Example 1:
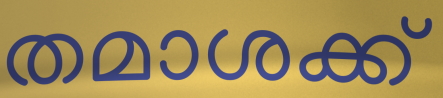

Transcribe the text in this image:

തമാശക്ക്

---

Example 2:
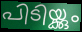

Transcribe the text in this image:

പിടിയ്ക്കും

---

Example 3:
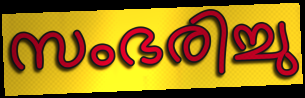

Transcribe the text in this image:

സംഭരിച്ചു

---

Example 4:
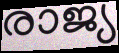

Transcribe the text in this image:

രാജ്യ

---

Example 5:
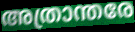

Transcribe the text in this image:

അത്രാന്തരേ